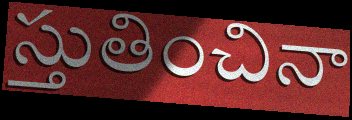
స్తుతించినా